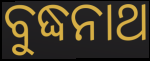
ବୁଦ୍ଧନାଥ